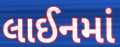
લાઈનમાં